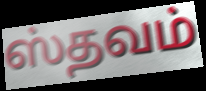
ஸ்தவம்